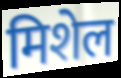
मिशेल